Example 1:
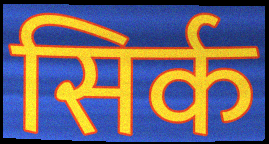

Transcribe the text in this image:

सिर्क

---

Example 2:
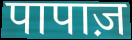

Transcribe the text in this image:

पापाज़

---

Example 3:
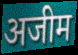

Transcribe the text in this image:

अजीम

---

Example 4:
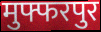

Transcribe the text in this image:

मुफ्फरपुर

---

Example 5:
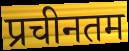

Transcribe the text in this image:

प्रचीनतम